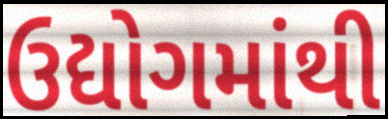
ઉદ્યોગમાંથી